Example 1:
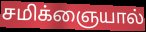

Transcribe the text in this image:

சமிக்ஞையால்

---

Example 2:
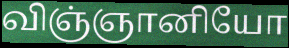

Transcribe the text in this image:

விஞ்ஞானியோ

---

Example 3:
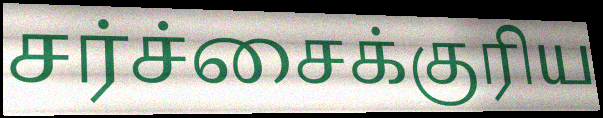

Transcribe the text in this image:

சர்ச்சைக்குரிய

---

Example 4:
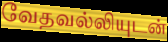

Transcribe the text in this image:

வேதவல்லியுடன்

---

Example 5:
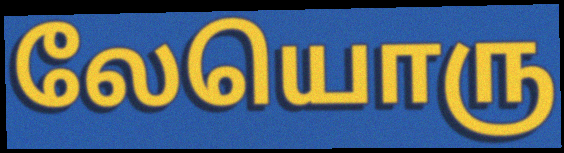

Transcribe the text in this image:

லேயொரு